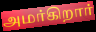
அமர்கிறார்